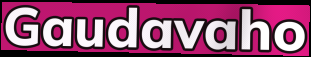
Gaudavaho